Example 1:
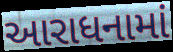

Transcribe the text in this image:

આરાધનામાં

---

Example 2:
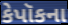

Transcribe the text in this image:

કેપૉકના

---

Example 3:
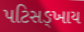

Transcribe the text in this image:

પટિસઙ્ખાય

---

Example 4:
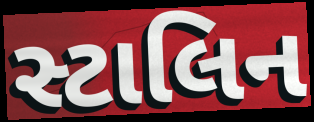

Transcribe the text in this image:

સ્ટાલિન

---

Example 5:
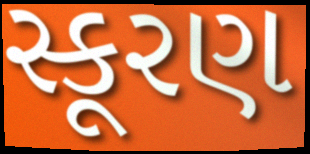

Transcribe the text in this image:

સ્કૂરણ